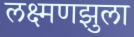
लक्ष्मणझुला